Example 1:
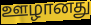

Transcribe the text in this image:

ஊழானது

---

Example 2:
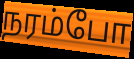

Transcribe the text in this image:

நரம்போ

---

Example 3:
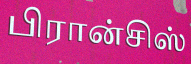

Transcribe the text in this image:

பிரான்சிஸ்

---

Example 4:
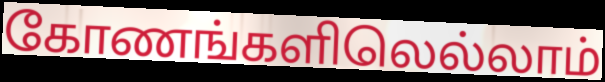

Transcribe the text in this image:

கோணங்களிலெல்லாம்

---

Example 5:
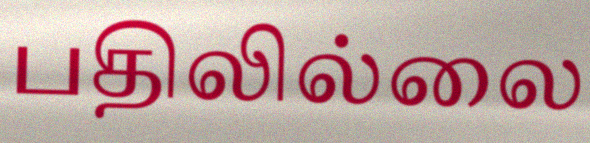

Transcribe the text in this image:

பதிலில்லை